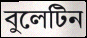
বুলেটিন